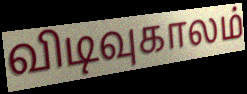
விடிவுகாலம்